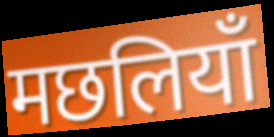
मछलियाँ